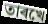
তাৰখে